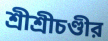
শ্রীশ্রীচণ্ডীর